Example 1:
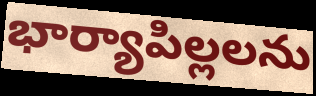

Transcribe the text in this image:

భార్యాపిల్లలను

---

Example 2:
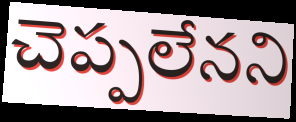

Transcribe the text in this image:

చెప్పలేనని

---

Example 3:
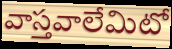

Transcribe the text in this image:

వాస్తవాలేమిటో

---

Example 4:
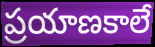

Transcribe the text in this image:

ప్రయాణకాలే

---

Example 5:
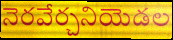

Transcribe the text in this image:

నెరవేర్చనియెడల